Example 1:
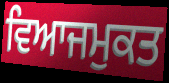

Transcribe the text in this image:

ਵਿਆਜਮੁਕਤ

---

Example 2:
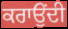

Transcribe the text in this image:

ਕਰਾਉਂਦੀ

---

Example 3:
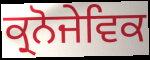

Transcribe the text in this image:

ਕ੍ਰਨੋਜੇਵਿਕ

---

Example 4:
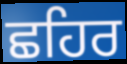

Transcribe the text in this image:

ਛਹਿਰ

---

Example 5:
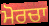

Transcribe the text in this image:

ਮੋਰਚਾ